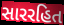
સારરહિત